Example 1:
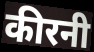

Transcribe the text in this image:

कीरनी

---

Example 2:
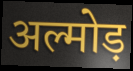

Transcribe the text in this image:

अल्मोड़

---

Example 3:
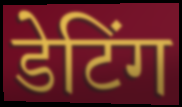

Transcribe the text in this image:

डेटिंग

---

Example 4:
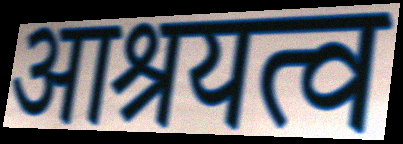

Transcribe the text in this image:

आश्रयत्व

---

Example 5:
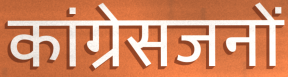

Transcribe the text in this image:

कांग्रेसजनों